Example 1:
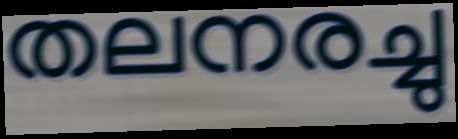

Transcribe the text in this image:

തലനരച്ചു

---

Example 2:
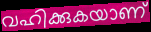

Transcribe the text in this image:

വഹിക്കുകയാണ്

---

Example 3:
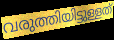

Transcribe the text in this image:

വരുത്തിയിട്ടുള്ളത്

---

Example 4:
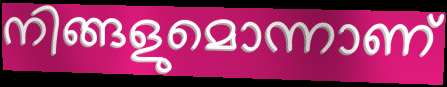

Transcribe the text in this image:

നിങ്ങളുമൊന്നാണ്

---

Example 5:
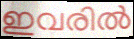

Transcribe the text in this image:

ഇവരിൽ